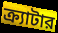
ক্র্যাটার